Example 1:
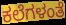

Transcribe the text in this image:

ಕಲೆಗಳಂತೆ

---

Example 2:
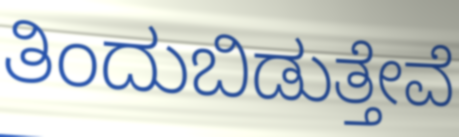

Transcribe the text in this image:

ತಿಂದುಬಿಡುತ್ತೇವೆ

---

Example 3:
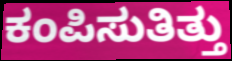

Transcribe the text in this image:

ಕಂಪಿಸುತಿತ್ತು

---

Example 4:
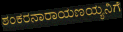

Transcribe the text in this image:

ಶಂಕರನಾರಾಯಣಯ್ಯನಿಗೆ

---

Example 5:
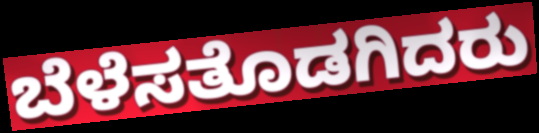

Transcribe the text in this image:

ಬೆಳೆಸತೊಡಗಿದರು